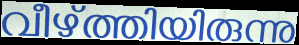
വീഴ്ത്തിയിരുന്നു